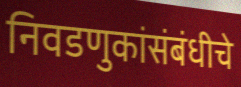
निवडणुकांसंबंधीचे